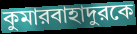
কুমারবাহাদুরকে